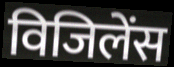
विजिलेंस